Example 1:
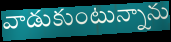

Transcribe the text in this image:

వాడుకుంటున్నాను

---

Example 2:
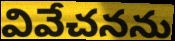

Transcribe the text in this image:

వివేచనను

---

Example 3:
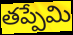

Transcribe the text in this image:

తప్పేమి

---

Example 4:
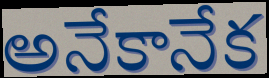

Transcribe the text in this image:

అనేకానేక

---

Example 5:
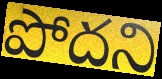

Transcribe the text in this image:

పోదని